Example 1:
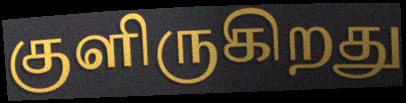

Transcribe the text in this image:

குளிருகிறது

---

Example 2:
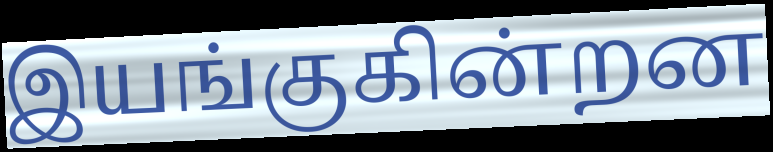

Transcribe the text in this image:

இயங்குகின்றன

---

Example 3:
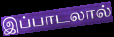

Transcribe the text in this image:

இப்பாடலால்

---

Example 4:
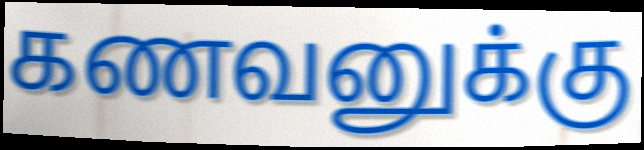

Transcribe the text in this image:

கணவனுக்கு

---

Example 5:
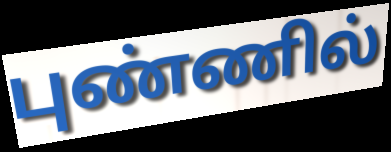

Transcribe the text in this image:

புண்ணில்